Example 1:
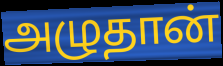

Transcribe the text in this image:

அழுதான்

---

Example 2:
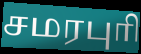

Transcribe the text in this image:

சமரபுரி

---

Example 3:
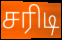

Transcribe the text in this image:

சரிடி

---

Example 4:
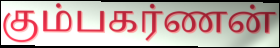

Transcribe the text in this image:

கும்பகர்ணன்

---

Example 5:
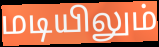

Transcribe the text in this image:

மடியிலும்